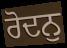
ਰੋਦਨੁ